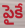
పైకే